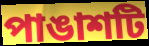
পাঙাশটি